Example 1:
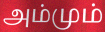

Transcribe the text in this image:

அம்மும்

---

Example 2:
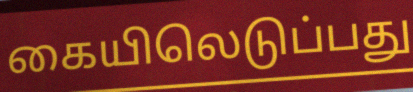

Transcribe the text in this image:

கையிலெடுப்பது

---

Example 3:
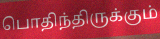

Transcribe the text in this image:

பொதிந்திருக்கும்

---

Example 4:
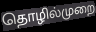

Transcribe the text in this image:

தொழில்முறை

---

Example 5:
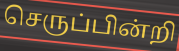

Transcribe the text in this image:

செருப்பின்றி